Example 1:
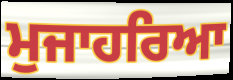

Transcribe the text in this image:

ਮੁਜਾਹਰਿਆ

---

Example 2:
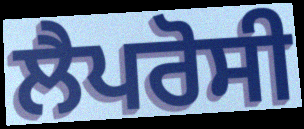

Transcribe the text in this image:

ਲੈਪਰੋਸੀ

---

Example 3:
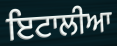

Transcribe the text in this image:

ਇਟਾਲੀਆ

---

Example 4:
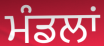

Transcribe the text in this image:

ਮੰਡਲਾਂ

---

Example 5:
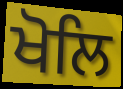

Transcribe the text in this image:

ਖੋਲਿ